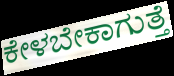
ಕೇಳಬೇಕಾಗುತ್ತೆ